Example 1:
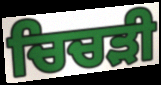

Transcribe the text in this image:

ਚਿਚੜੀ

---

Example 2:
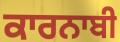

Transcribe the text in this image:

ਕਾਰਨਾਬੀ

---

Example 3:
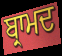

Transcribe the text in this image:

ਬ੍ਰਾਮਦ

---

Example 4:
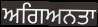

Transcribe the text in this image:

ਅਗਿਅਨਤਾ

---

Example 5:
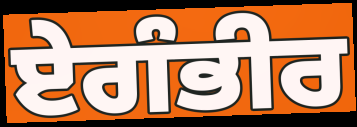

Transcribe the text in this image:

ਏਗੰਭੀਰ